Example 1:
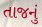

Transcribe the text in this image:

તાજનું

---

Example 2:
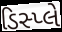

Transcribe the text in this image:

ડિસ્પ્લે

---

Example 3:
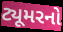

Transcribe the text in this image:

ટ્યૂમરનો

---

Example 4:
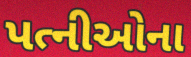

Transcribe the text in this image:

પત્નીઓના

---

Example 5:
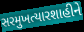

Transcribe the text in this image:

સરમુખત્યારશાહીને